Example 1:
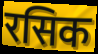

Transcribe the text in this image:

रसिक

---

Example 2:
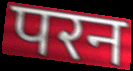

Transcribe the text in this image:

परन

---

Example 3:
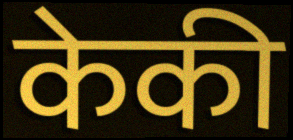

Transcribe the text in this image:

केकी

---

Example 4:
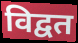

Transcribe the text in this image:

विद्वत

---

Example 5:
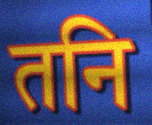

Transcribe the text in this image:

तनि